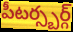
పీటర్స్బర్గ్